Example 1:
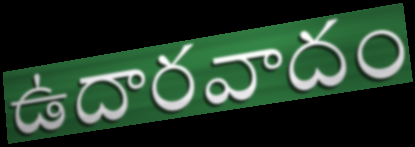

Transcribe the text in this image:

ఉదారవాదం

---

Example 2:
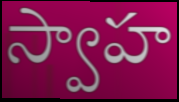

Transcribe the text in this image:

స్వాహ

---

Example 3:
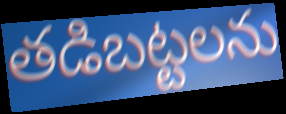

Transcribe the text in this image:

తడిబట్టలను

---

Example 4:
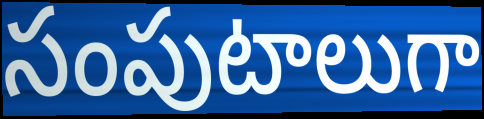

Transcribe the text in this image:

సంపుటాలుగా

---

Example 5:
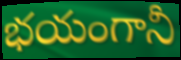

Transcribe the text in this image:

భయంగానీ